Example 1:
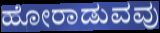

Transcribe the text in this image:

ಹೋರಾಡುವವು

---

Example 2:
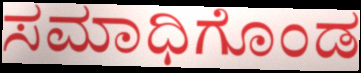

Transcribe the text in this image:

ಸಮಾಧಿಗೊಂಡ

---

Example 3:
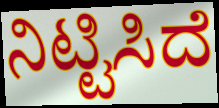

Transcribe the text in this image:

ನಿಟ್ಟಿಸಿದೆ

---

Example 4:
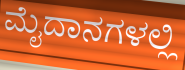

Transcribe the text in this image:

ಮೈದಾನಗಳಲ್ಲಿ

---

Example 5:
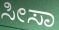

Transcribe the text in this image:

ಸೀಸಾ